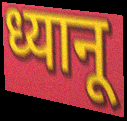
ध्यानू